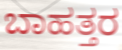
ಬಾಹತ್ತರ